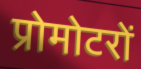
प्रोमोटरों